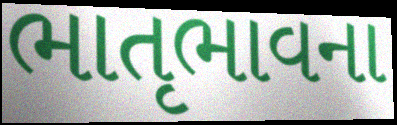
ભાતૃભાવના